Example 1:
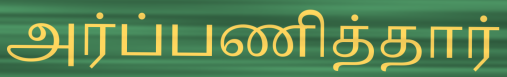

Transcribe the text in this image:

அர்ப்பணித்தார்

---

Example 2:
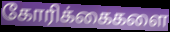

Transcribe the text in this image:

கோரிக்கைகளை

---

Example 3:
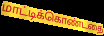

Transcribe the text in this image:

மாட்டிக்கொண்டதை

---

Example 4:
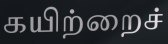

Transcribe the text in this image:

கயிற்றைச்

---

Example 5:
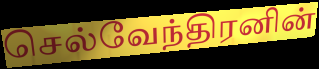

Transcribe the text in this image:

செல்வேந்திரனின்